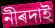
নীৰদাই